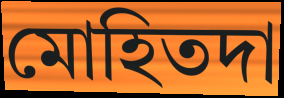
মোহিতদা